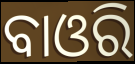
ବାଓରି